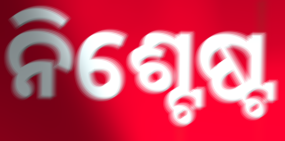
ନିଶ୍ଟେଷ୍ଟ